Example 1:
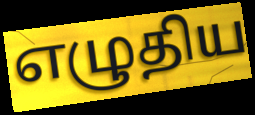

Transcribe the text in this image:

எழுதிய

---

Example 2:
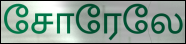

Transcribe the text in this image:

சோரேலே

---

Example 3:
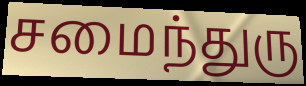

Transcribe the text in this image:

சமைந்துரு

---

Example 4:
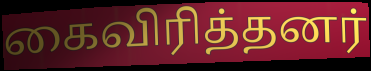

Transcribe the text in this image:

கைவிரித்தனர்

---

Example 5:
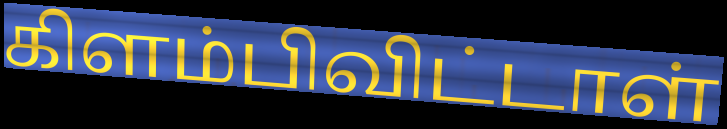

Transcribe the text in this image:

கிளம்பிவிட்டாள்